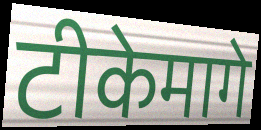
टीकेमागे